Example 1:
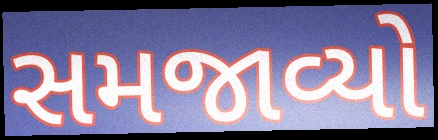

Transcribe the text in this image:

સમજાવ્યો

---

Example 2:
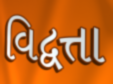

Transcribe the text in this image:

વિદ્વત્તા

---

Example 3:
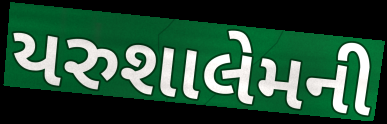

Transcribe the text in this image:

યરુશાલેમની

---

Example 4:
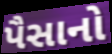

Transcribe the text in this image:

પૈસાનો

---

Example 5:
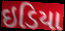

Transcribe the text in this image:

ઇડિયા